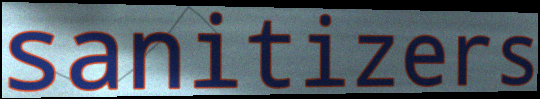
sanitizers